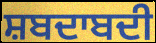
ਸ਼ਬਦਾਬਦੀ